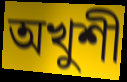
অখুশী